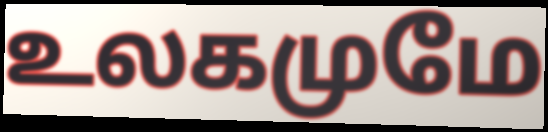
உலகமுமே